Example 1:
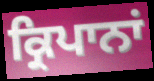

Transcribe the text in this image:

ਕ੍ਰਿਪਾਨਾਂ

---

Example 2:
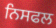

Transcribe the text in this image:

ਨਿਸਫਲ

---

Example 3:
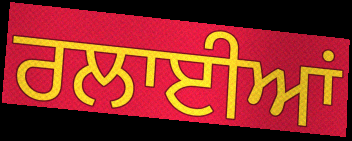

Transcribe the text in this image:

ਰਲਾਈਆਂ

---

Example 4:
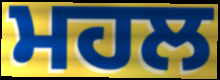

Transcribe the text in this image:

ਮਹਲ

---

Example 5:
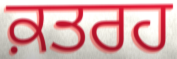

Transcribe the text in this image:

ਕ਼ਤਰਹ